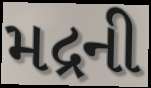
મદ્રની